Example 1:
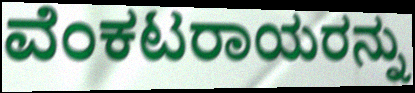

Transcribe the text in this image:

ವೆಂಕಟರಾಯರನ್ನು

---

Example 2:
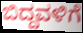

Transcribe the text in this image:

ಬಿದ್ದವಳಿಗೆ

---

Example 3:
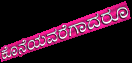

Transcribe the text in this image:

ಕೊನೆಯವರೆಗಾದರೂ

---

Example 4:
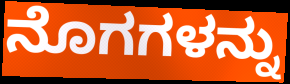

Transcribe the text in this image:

ನೊಗಗಳನ್ನು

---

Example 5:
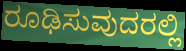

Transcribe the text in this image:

ರೂಢಿಸುವುದರಲ್ಲಿ